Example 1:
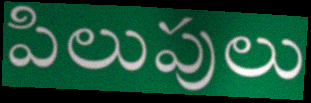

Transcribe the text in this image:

పిలుపులు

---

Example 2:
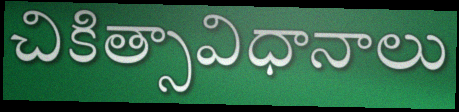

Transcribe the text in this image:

చికిత్సావిధానాలు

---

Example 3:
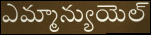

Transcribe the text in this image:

ఎమ్మాన్యుయెల్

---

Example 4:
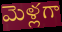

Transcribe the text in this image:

మెళ్లగా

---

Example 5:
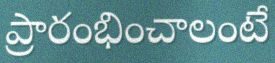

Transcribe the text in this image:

ప్రారంభించాలంటే